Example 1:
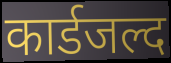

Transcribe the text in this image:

कार्डजल्द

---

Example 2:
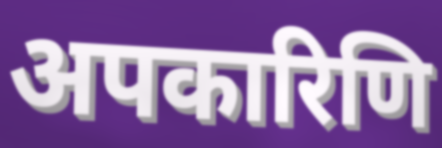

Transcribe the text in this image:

अपकारिणि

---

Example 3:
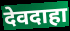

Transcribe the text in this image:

देवदाहा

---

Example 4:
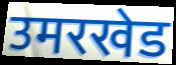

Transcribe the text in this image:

उमरखेड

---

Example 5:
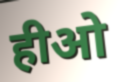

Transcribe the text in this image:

हीओ